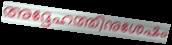
അദ്ദേഹത്തിനുശേഷം